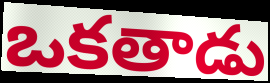
ఒకతాడు